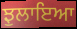
ਝੁਲਾਇਆ